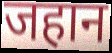
जहान